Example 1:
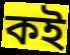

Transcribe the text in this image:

কই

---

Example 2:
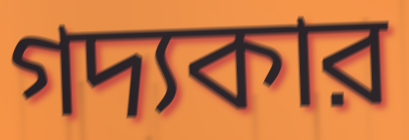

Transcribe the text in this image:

গদ্যকার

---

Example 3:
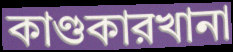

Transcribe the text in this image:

কাণ্ডকারখানা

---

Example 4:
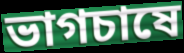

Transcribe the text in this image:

ভাগচাষে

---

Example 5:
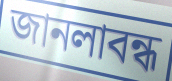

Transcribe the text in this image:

জানলাবন্ধ